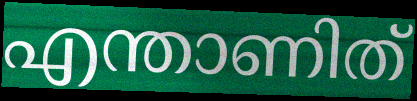
എന്താണിത്